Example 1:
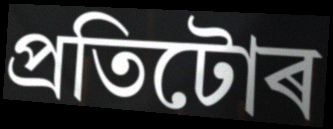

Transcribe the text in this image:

প্ৰতিটোৰ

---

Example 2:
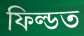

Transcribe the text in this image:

ফিল্ডত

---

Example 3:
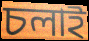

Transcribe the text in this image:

চলাই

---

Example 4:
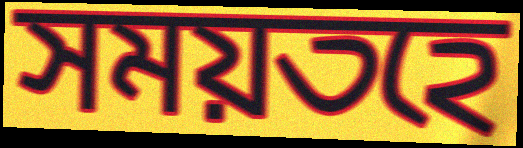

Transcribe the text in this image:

সময়তহে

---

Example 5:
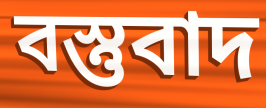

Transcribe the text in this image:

বস্তুবাদ